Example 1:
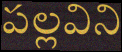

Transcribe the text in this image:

పల్లవిని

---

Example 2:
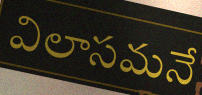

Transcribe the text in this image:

విలాసమనే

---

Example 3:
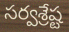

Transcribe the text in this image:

సర్వశ్రేష్ట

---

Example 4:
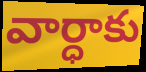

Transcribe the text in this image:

వార్ధాకు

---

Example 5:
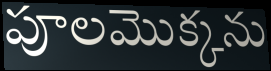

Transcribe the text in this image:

పూలమొక్కను